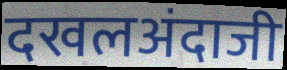
दखलअंदाजी